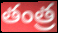
తంత్ర